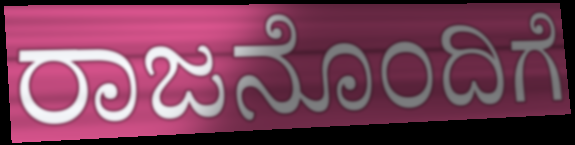
ರಾಜನೊಂದಿಗೆ